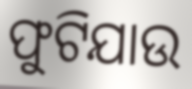
ଫୁଟିଯାଉ